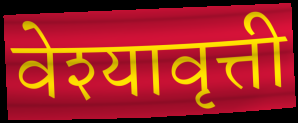
वेश्यावृत्ती